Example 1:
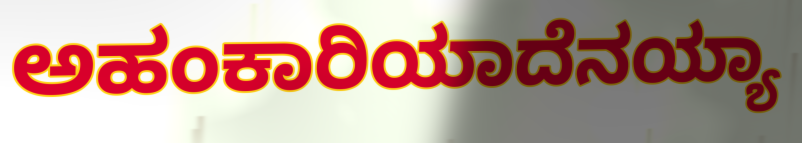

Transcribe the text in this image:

ಅಹಂಕಾರಿಯಾದೆನಯ್ಯಾ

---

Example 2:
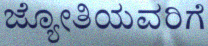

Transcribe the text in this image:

ಜ್ಯೋತಿಯವರಿಗೆ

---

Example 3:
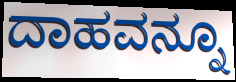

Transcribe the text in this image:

ದಾಹವನ್ನೂ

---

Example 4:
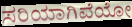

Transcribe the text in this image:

ಸರಿಯಾಗಿವೆಯೋ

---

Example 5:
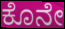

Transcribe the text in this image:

ಕೊನೇ